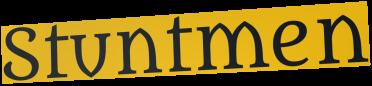
Stuntmen